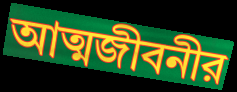
আত্মজীবনীর